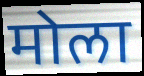
मोला